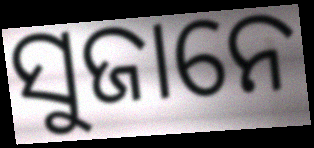
ସୁଜାନେ